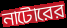
নাটোরের